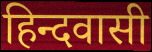
हिन्दवासी